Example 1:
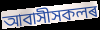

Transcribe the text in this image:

আবাসীসকলৰ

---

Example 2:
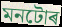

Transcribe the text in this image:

মনটোৰ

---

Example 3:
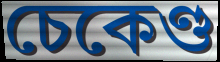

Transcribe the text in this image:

চেকেণ্ড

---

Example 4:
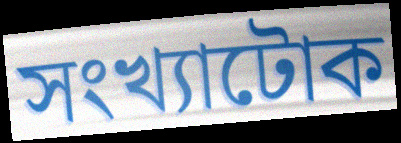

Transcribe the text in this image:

সংখ্যাটোক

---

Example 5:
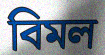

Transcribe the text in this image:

বিমল